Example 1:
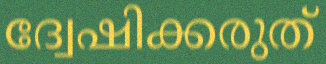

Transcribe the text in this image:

ദ്വേഷിക്കരുത്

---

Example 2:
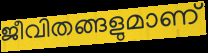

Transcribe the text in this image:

ജീവിതങ്ങളുമാണ്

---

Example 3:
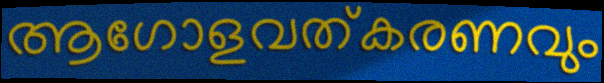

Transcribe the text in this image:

ആഗോളവത്കരണവും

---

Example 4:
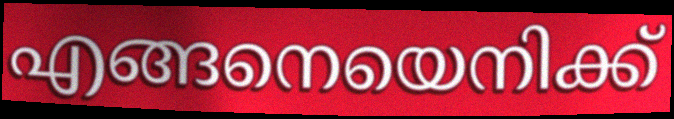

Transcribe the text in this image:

എങ്ങനെയെനിക്ക്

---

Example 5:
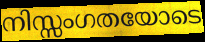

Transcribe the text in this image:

നിസ്സംഗതയോടെ